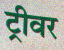
ट्रीवर